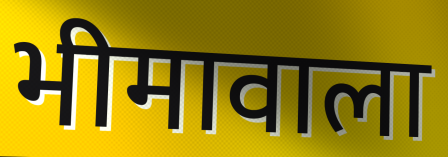
भीमावाला